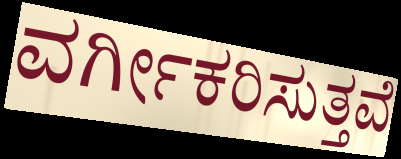
ವರ್ಗೀಕರಿಸುತ್ತವೆ